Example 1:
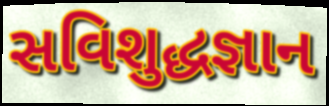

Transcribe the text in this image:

સવિશુદ્ધજ્ઞાન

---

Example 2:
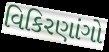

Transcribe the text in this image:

વિકિરણાંગો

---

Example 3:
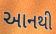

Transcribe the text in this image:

આનથી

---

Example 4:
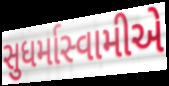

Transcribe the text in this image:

સુધર્માસ્વામીએ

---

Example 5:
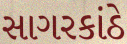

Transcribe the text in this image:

સાગરકાંઠે